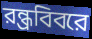
রন্ধ্রবিবরে